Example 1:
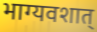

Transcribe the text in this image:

भाग्यवशात्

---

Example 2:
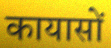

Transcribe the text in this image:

कायासों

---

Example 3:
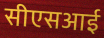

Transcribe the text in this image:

सीएसआई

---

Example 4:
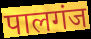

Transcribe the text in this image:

पालगंज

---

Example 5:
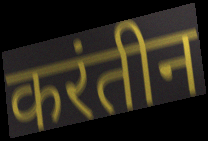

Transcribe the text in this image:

करंतीन